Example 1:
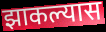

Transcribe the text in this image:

झाकल्यास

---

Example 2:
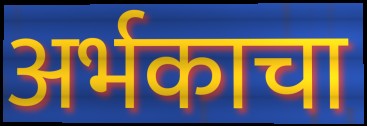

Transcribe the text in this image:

अर्भकाचा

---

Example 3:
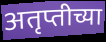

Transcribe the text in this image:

अतृप्तीच्या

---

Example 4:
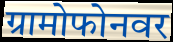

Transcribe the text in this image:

ग्रामोफोनवर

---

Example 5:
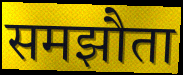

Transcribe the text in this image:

समझौता